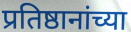
प्रतिष्ठानांच्या